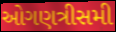
ઓગણત્રીસમી